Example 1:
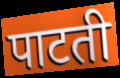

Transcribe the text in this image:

पाटती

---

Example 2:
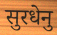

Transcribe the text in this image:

सुरधेनु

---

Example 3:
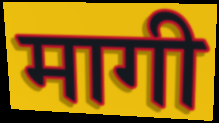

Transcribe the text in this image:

मागी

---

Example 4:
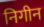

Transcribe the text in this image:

निगीन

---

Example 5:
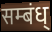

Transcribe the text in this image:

सम्बंध्